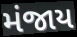
મંજાય